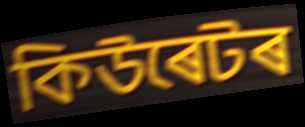
কিউৰেটৰ